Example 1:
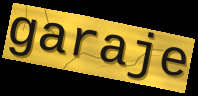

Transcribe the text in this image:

garaje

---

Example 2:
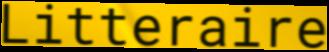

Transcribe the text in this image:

Litteraire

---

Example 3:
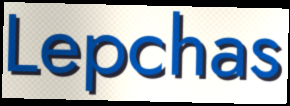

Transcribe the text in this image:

Lepchas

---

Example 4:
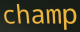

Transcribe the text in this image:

champ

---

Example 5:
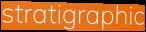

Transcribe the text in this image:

stratigraphic